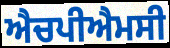
ਐਚਪੀਐਮਸੀ